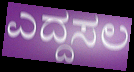
ಎದ್ದಸಲ